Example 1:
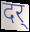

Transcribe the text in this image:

दर्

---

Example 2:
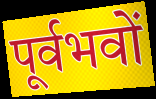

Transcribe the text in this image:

पूर्वभवों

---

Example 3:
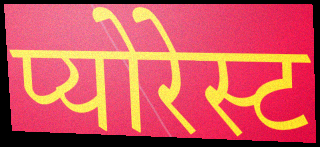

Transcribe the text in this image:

प्योरेस्ट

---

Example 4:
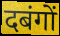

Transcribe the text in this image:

दबंगों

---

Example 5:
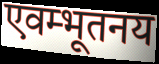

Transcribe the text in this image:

एवम्भूतनय